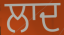
ਲਾਦ